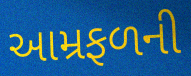
આમ્રફળની